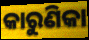
କାରୁଣିକା